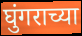
घुंगराच्या